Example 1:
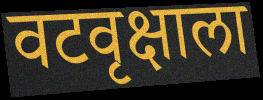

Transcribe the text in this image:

वटवृक्षाला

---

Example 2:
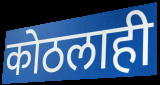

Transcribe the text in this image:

कोठलाही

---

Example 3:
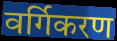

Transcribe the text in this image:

वर्गिकरण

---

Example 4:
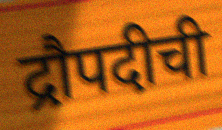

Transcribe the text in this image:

द्रौपदीची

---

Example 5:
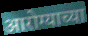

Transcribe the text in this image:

आरोग्याच्या